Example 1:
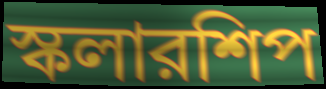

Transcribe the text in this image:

স্কলারশিপ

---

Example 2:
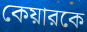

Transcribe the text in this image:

কেয়ারকে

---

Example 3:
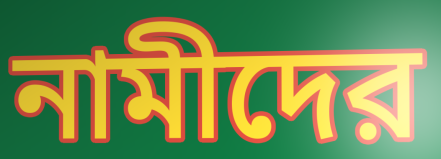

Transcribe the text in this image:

নামীদের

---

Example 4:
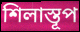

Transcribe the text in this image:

শিলাস্তূপ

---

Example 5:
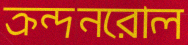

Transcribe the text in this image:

ক্রন্দনরোল